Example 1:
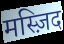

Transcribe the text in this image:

मस्ज़िद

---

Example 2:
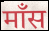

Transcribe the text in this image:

माँस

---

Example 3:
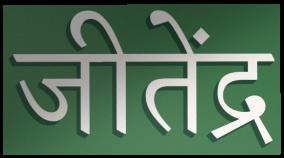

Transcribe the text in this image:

जीतेंद्र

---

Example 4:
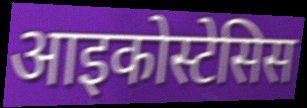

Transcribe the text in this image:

आइकोस्टेसिस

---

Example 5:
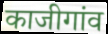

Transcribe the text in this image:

काजीगांव